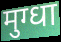
मुग्धा